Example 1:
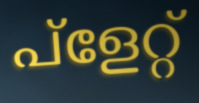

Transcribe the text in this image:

പ്ളേറ്റ്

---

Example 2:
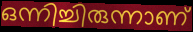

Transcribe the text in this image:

ഒന്നിച്ചിരുന്നാണ്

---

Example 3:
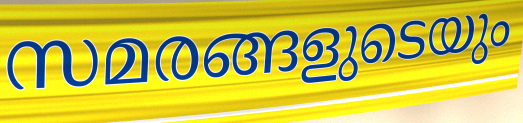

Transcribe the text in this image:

സമരങ്ങളുടെയും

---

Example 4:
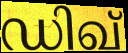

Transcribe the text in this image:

ഡിഖ്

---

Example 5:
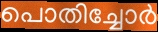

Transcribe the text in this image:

പൊതിച്ചോർ